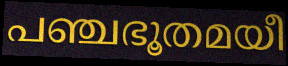
പഞ്ചഭൂതമയീ